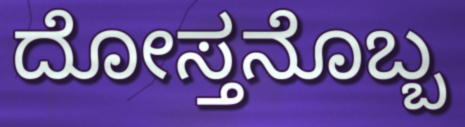
ದೋಸ್ತನೊಬ್ಬ